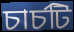
চার্চটি